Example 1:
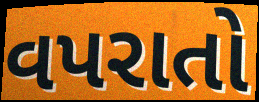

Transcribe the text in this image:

વપરાતો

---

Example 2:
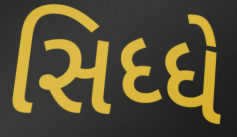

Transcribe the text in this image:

સિધ્ધે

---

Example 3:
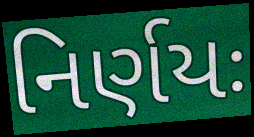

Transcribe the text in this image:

નિર્ણયઃ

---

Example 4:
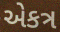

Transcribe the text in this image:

એકત્ર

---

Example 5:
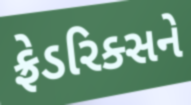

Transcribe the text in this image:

ફ્રેડરિક્સને